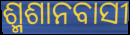
ଶ୍ମଶାନବାସୀ